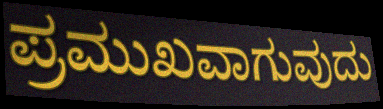
ಪ್ರಮುಖವಾಗುವುದು